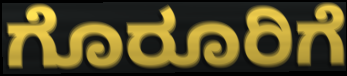
ಗೊರೂರಿಗೆ